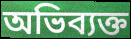
অভিব্যক্ত